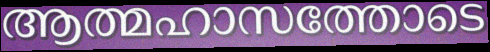
ആത്മഹാസത്തോടെ